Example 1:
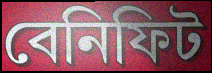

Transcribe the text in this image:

বেনিফিট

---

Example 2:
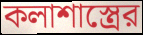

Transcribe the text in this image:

কলাশাস্ত্রের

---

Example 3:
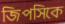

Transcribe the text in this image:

জিপসিকে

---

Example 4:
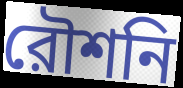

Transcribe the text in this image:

রৌশনি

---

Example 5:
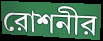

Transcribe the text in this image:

রোশনীর